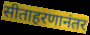
सीताहरणानंतर